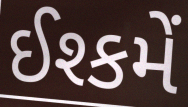
ઈશ્કમેં